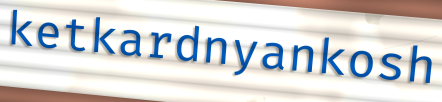
ketkardnyankosh